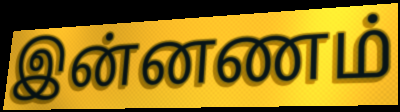
இன்னணம்